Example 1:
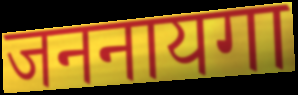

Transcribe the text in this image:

जननायगा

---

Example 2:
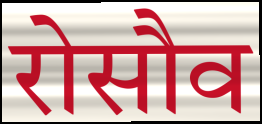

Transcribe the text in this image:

रोसौव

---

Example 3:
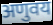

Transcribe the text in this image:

अणुवय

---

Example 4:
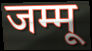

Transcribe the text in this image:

जम्‍मू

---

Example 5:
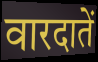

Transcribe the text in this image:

वारदातें